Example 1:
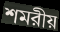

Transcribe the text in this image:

শমরীয়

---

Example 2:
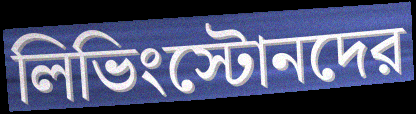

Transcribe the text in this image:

লিভিংস্টোনদের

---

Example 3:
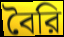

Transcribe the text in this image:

বৈরি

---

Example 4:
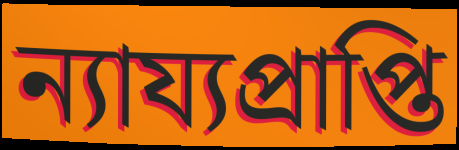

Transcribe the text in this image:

ন্যায্যপ্রাপ্তি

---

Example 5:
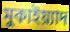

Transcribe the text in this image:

মুকাইয়্যাদ